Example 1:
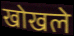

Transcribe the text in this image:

खोखले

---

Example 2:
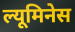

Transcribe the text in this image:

ल्यूमिनेस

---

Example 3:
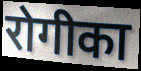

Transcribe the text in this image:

रोगीका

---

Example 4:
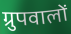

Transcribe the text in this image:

ग्रुपवालों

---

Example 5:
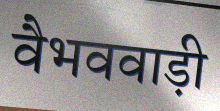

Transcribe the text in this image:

वैभववाड़ी